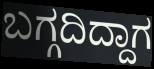
ಬಗ್ಗದಿದ್ದಾಗ